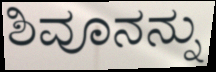
ಶಿವೂನನ್ನು